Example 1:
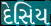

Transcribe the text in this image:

દેસિય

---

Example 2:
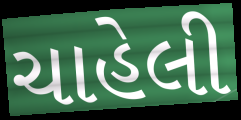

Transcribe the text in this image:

ચાહેલી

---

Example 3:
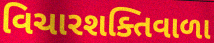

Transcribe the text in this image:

વિચારશક્તિવાળા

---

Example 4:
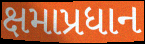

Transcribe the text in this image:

ક્ષમાપ્રધાન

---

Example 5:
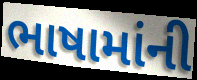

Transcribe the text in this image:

ભાષામાંની